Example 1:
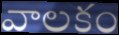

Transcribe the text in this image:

వాలకం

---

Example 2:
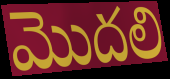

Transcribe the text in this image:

మొదలి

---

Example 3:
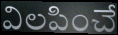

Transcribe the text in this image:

విలపించే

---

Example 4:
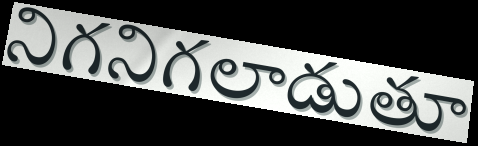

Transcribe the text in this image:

నిగనిగలాడుతూ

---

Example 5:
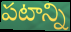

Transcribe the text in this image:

పటాన్ని